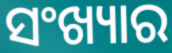
ସଂଖ୍ୟାର